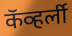
कॅव्हर्ली